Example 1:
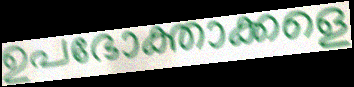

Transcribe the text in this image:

ഉപഭോക്താക്കളെ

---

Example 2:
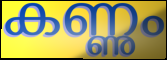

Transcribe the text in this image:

കണ്ണും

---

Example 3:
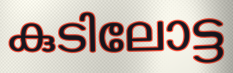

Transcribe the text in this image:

കുടിലോട്ട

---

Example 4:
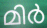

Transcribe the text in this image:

മിർ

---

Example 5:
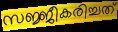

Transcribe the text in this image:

സജ്ജീകരിച്ചത്